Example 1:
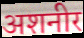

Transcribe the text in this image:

अशनीर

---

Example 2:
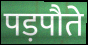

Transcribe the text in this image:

पड़पौते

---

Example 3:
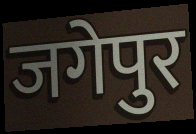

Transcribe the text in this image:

जगेपुर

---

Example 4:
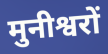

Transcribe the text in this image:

मुनीश्वरों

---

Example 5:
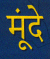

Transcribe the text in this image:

मूंदे